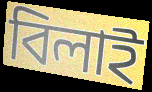
বিলাই